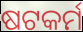
ଷଟକର୍ମ